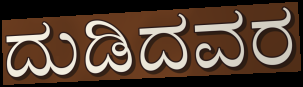
ದುಡಿದವರ